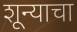
शून्याचा